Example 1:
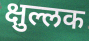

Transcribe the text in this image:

क्षुल्लक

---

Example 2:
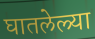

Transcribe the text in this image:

घातलेल्या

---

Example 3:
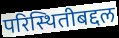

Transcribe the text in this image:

परिस्थितीबद्दल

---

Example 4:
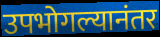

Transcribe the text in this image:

उपभोगल्यानंतर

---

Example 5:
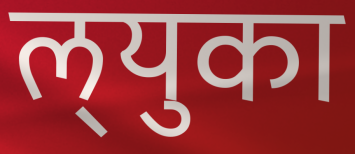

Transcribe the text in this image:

ल्युका